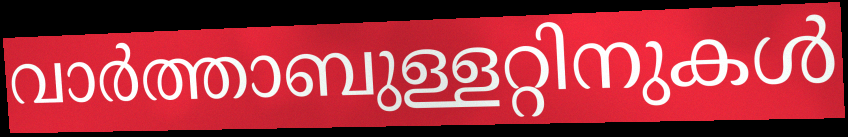
വാർത്താബുള്ളറ്റിനുകൾ